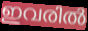
ഇവരിൽ